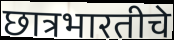
छात्रभारतीचे